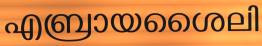
എബ്രായശൈലി